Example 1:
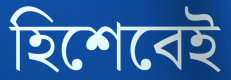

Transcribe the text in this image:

হিশেবেই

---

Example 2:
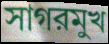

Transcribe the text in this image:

সাগরমুখ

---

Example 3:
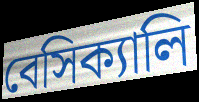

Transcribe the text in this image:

বেসিক্যালি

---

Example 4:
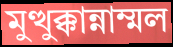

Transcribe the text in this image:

মুত্থুক্কান্নাম্মল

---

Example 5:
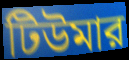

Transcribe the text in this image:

টিউমার